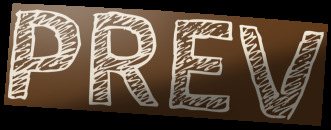
PREV